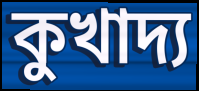
কুখাদ্য